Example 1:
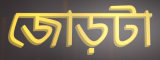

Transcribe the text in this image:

জোড়টা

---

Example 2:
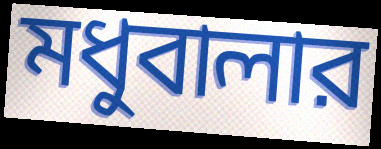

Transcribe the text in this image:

মধুবালার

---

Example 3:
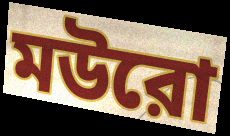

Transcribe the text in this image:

মউরো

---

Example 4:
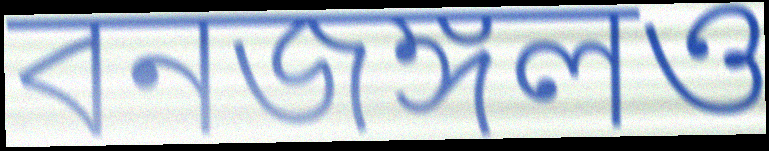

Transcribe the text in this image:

বনজঙ্গলও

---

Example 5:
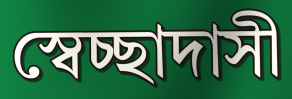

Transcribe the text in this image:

স্বেচ্ছাদাসী